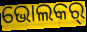
ଭୋଲକର୍